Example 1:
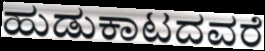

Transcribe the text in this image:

ಹುಡುಕಾಟದವರೆ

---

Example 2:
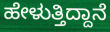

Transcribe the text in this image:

ಹೇಳುತ್ತಿದ್ದಾನೆ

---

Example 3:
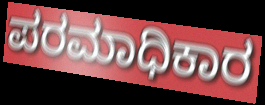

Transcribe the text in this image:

ಪರಮಾಧಿಕಾರ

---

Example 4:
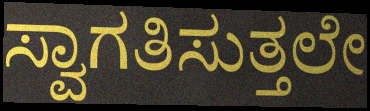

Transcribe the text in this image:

ಸ್ವಾಗತಿಸುತ್ತಲೇ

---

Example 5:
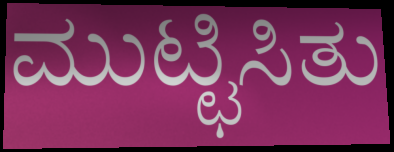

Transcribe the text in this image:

ಮುಟ್ಟಿಸಿತು